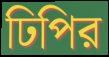
ঢিপির